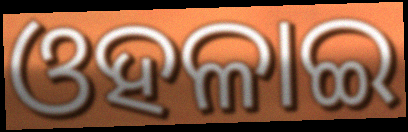
ଓହଳାଇ